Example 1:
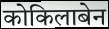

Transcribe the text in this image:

कोकिलाबेन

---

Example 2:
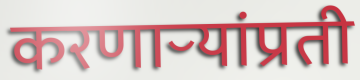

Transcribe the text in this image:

करणाऱ्यांप्रती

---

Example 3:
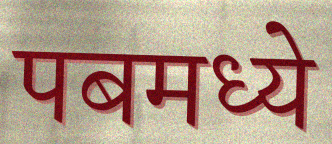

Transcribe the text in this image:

पबमध्ये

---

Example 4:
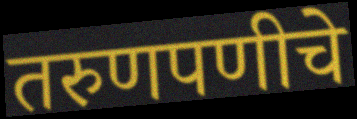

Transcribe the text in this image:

तरुणपणीचे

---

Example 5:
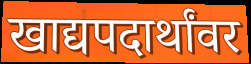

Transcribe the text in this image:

खाद्यपदार्थांवर